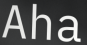
Aha